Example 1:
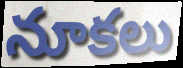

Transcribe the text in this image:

నూకలు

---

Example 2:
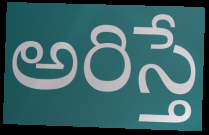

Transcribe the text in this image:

అరిస్తే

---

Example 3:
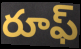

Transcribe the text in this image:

రూఫ్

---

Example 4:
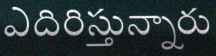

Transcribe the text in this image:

ఎదిరిస్తున్నారు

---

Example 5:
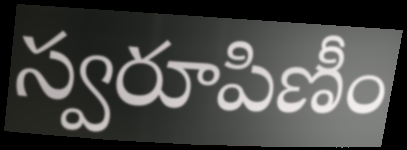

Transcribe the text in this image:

స్వరూపిణీం